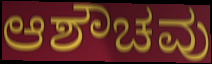
ಆಶೌಚವು